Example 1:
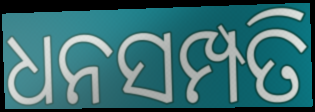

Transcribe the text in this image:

ଧନସମ୍ପତି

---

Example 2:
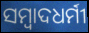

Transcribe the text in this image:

ସମ୍ବାଦଧର୍ମୀ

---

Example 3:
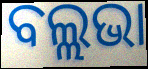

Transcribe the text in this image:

ବଲ୍ଲଭା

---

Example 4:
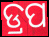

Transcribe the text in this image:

ଡ୍ରପ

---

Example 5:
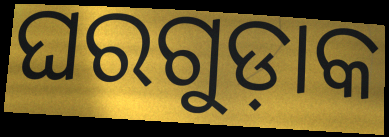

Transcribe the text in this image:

ଘରଗୁଡ଼ାକ